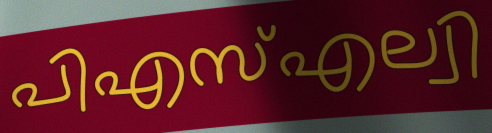
പിഎസ്എല്വി